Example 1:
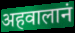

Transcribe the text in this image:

अहवालानं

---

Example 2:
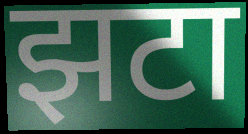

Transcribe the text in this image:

झटा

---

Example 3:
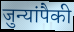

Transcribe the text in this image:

जुन्यांपैकी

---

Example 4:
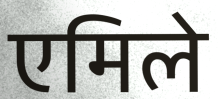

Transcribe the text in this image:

एमिले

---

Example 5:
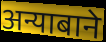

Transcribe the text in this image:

अन्याबाने